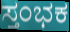
ಸ್ತಂಭಕ